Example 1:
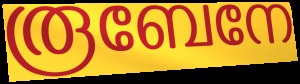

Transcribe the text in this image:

രൂബേനേ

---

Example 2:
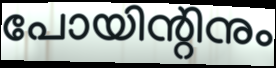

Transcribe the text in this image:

പോയിന്റിനും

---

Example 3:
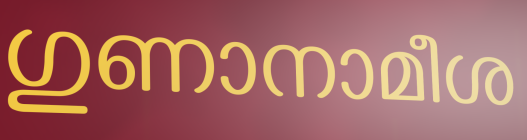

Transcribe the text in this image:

ഗുണാനാമീശ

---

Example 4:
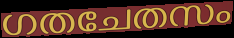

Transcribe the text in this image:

ഗതചേതസം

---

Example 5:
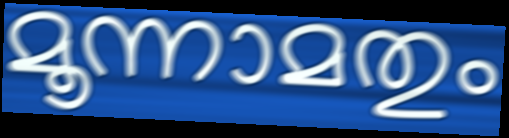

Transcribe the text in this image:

മൂന്നാമതും